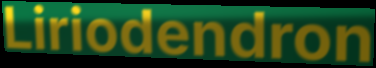
Liriodendron